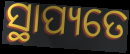
ସ୍ଥାପ୍ୟତେ